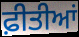
ਫ਼ੀਤੀਆਂ